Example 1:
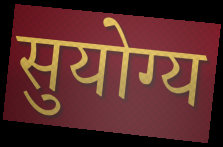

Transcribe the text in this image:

सुयोग्य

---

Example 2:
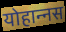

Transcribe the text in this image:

योहान्नस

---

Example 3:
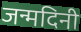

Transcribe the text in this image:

जन्मदिनी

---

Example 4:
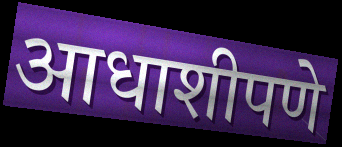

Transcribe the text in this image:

आधाशीपणे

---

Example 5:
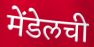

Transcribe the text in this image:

मेंडेलची